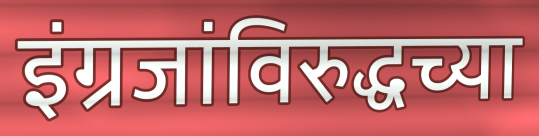
इंग्रजांविरुद्धच्या